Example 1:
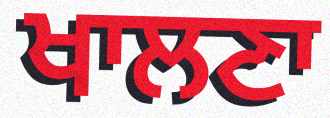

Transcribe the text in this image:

ਖਾਲਣਾ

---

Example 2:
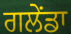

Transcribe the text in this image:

ਗਲੇਂਡਾ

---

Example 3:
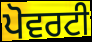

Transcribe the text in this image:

ਪੋਵਰਟੀ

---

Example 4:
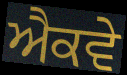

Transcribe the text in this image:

ਐਕਵੇ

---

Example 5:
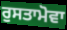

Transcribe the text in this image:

ਰੁਸਤਾਮੋਵਾ